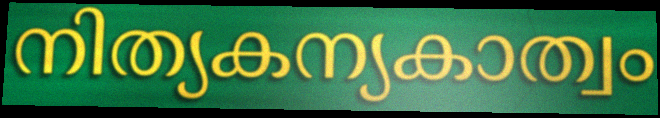
നിത്യകന്യകാത്വം